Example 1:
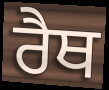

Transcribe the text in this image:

ਰੈਥ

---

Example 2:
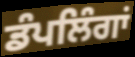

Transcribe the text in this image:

ਡੰਪਲਿੰਗਾਂ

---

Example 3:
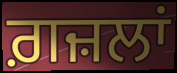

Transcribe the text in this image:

ਗ਼ਜ਼ਲਾਂ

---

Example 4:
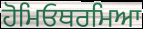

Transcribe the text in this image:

ਹੋਮਿਓਥਰਮਿਆ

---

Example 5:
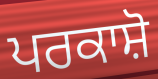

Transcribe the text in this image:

ਪਰਕਾਸ਼ੋ